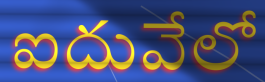
ఐదువేలో